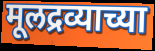
मूलद्रव्याच्या